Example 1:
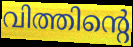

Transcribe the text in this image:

വിത്തിന്റെ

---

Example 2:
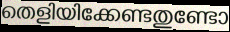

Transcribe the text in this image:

തെളിയിക്കേണ്ടതുണ്ടോ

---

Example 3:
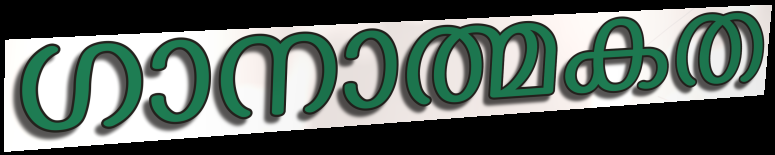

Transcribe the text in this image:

ഗാനാത്മകത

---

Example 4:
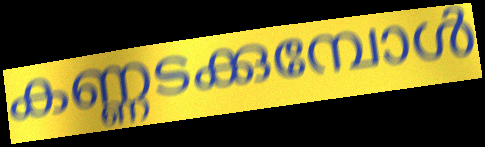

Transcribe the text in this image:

കണ്ണടക്കുമ്പോൾ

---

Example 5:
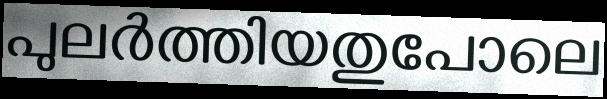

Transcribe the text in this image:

പുലർത്തിയതുപോലെ